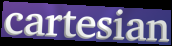
cartesian